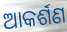
ଆକର୍ଶଣ